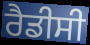
ਰੈਡੀਸੀ